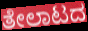
ತೇಲಾಟದ